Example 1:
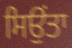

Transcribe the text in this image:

ਸਿਉਂਤਾ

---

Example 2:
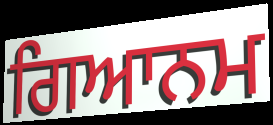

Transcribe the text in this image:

ਗਿਆਨਮ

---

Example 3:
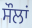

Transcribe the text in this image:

ਸੌਲਾਂ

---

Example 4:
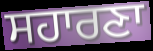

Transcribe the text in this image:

ਸਹਾਰਣਾ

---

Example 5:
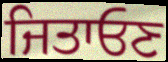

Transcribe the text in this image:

ਜਿਤਾਓਣ